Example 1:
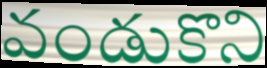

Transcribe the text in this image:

వండుకొని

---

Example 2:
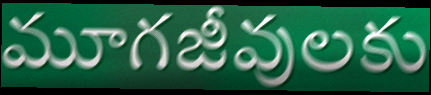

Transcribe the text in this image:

మూగజీవులకు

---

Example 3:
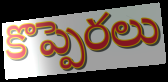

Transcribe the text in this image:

కొప్పెరలు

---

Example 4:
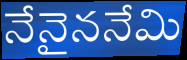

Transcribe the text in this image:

నేనైననేమి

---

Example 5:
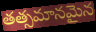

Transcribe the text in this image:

తత్సమానమైన